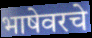
भाषेवरचे